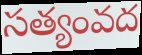
సత్యంవద